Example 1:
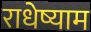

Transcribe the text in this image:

राधेष्याम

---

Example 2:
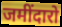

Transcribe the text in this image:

जमींदारो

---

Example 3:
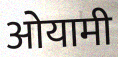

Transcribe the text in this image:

ओयामी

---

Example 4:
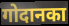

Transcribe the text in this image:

गोदानका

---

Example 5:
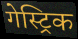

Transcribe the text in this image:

गेस्ट्रिक